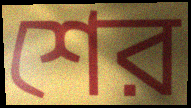
শের